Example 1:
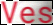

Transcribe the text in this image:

Ves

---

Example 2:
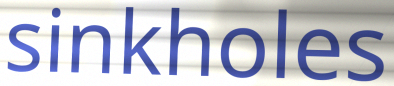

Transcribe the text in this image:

sinkholes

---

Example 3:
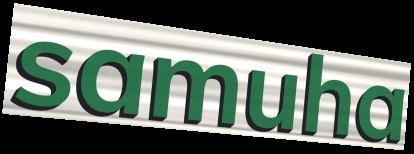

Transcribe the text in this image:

samuha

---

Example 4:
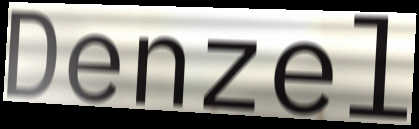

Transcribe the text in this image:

Denzel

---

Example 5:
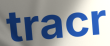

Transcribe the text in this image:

tracr